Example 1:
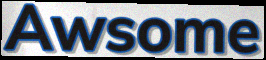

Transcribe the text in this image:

Awsome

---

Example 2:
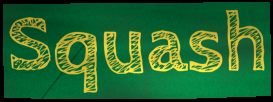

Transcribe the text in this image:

Squash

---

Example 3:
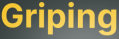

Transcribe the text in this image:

Griping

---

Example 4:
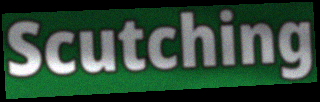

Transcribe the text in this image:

Scutching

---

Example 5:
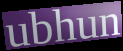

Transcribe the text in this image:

ubhun